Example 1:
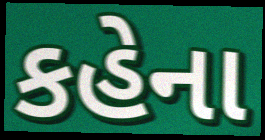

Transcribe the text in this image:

કહેના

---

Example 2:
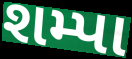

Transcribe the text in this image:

શમ્પા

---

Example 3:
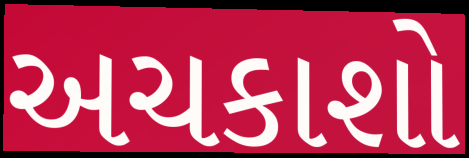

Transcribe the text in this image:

અચકાશો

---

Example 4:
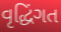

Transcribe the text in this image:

વૃદ્ધિંગત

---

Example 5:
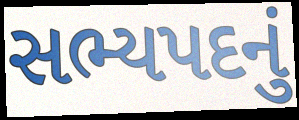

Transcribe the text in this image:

સભ્યપદનું